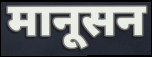
मानूसन